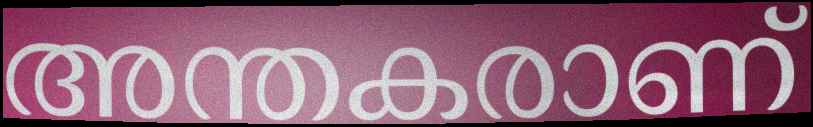
അന്തകരാണ്